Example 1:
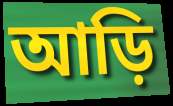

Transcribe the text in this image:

আড়ি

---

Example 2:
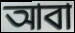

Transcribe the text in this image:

আবা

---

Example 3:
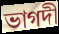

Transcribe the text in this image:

ভাগদী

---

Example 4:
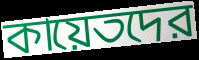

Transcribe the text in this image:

কায়েতদের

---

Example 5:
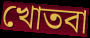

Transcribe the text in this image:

খোতবা